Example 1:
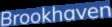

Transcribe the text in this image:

Brookhaven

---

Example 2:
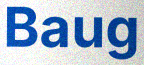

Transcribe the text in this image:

Baug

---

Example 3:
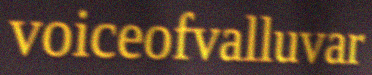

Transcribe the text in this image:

voiceofvalluvar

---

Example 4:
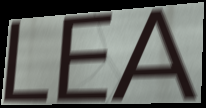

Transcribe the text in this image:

LEA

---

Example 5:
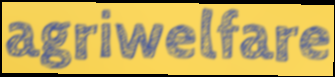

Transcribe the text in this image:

agriwelfare